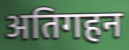
अतिगहन